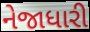
નેજાધારી